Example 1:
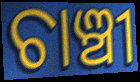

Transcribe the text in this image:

ଚାଞ୍ଚୀ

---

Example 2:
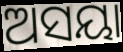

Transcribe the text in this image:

ଅସୟା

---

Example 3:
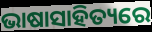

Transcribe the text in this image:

ଭାଷାସାହିତ୍ୟରେ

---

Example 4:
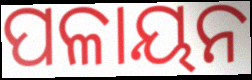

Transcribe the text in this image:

ପଳାୟନ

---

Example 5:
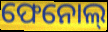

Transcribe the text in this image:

ଫେନୋଲ୍